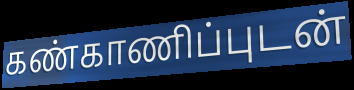
கண்காணிப்புடன்